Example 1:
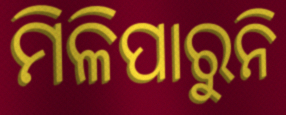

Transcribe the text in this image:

ମିଳିପାରୁନି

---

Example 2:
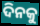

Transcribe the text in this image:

ଦିନକୁ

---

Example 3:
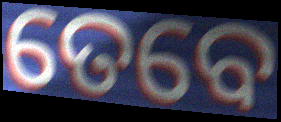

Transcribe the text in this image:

ତେବେ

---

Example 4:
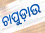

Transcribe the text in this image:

ଚାପୁଡ଼ାଉ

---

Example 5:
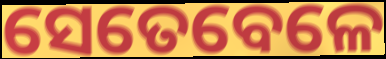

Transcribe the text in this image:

ସେତେବେଳେ